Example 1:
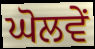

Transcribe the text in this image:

ਘੋਲਵੇਂ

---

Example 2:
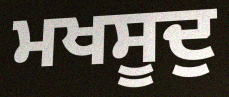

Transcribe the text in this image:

ਮਖਸੂਦੁ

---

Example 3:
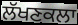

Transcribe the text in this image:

ਲੱਖਣਕਲਾ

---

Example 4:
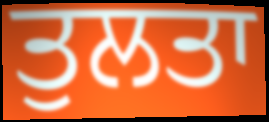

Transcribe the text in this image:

ਤੁਲਤਾ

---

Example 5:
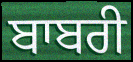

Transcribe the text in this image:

ਬਾਬਰੀ